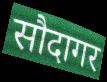
सौदागर